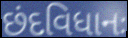
છંદવિધાનઃ